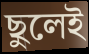
ছুলেই